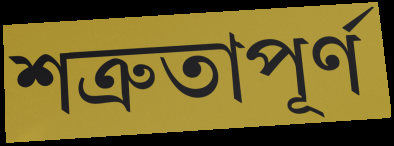
শত্রুতাপূর্ণ